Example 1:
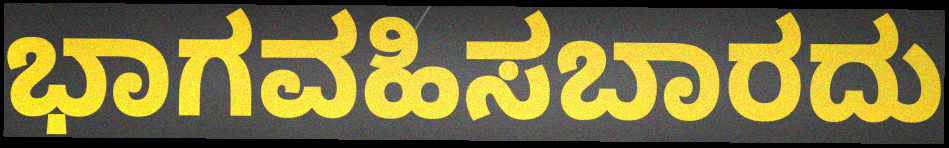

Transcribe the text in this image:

ಭಾಗವಹಿಸಬಾರದು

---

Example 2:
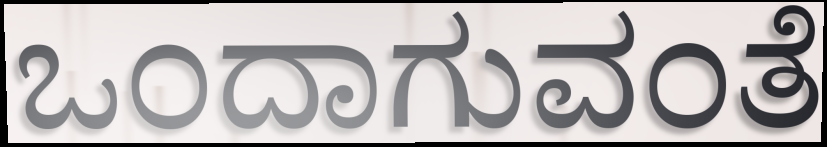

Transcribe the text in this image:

ಒಂದಾಗುವಂತೆ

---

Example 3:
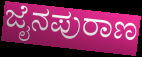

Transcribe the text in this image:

ಜೈನಪುರಾಣ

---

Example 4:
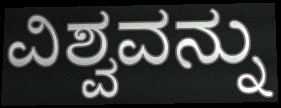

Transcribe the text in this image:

ವಿಶ್ವವನ್ನು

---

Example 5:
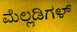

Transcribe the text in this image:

ಮೆಲ್ಲಡಿಗಳ್